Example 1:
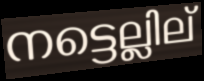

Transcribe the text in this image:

നട്ടെല്ലില്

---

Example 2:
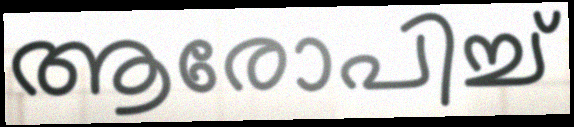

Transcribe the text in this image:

ആരോപിച്ച്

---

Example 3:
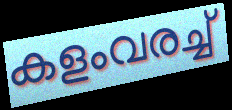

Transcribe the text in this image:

കളംവരച്ച്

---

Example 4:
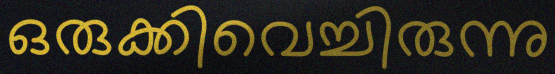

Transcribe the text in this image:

ഒരുക്കിവെച്ചിരുന്നു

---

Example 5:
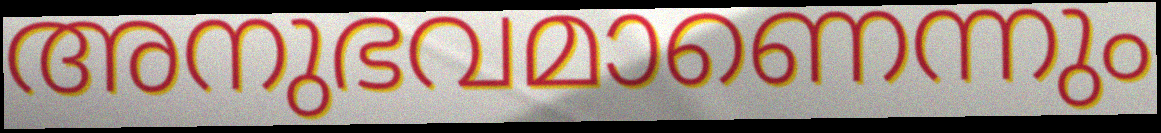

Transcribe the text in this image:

അനുഭവമാണെന്നും